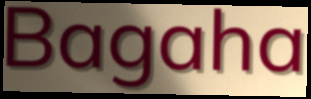
Bagaha